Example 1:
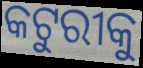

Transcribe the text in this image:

କଟୁରୀକୁ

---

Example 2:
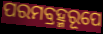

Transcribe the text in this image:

ପରମବ୍ରହ୍ମରୂପେ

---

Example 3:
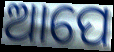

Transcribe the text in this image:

ଆପେ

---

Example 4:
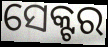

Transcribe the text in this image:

ସେକ୍ଟର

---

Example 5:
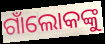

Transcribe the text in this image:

ଗାଁଲୋକଙ୍କୁ